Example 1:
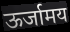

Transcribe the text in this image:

ऊर्जामय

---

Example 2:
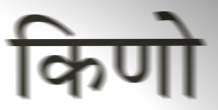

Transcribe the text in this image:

किणो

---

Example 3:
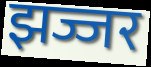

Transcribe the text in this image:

झज्जर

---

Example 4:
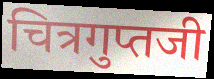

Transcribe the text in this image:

चित्रगुप्तजी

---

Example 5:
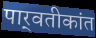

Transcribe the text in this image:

पार्वतीकांत